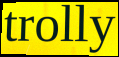
trolly